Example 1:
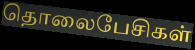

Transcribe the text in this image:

தொலைபேசிகள்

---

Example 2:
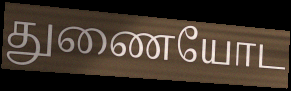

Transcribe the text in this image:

துணையோட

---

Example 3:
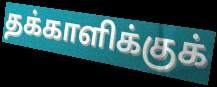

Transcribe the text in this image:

தக்காளிக்குக்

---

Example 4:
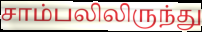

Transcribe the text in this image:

சாம்பலிலிருந்து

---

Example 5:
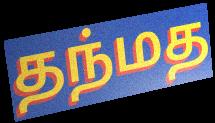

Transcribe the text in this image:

தந்மத